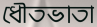
ধৌতভাতা